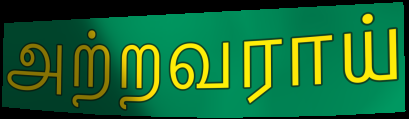
அற்றவராய்